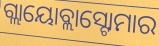
ଗ୍ଲାୟୋବ୍ଲାସ୍ଟୋମାର